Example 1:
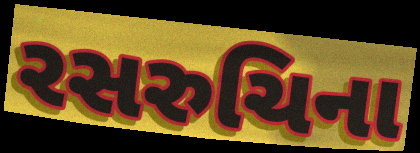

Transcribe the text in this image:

રસરુચિના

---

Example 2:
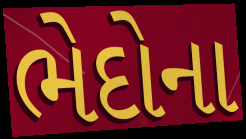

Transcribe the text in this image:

ભેદોના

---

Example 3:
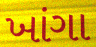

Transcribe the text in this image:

ખાંગા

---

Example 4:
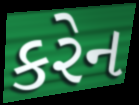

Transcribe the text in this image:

કરેન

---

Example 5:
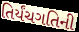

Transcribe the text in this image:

તિર્યંચગતિની